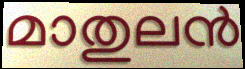
മാതുലൻ